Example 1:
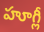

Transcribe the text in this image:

హూగ్లీ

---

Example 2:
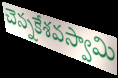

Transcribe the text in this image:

చెన్నకేశవస్వామి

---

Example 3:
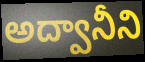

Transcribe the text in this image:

అద్వానీని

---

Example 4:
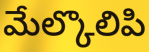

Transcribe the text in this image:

మేల్కొలిపి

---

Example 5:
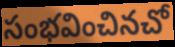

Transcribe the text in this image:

సంభవించినచో